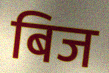
बिज